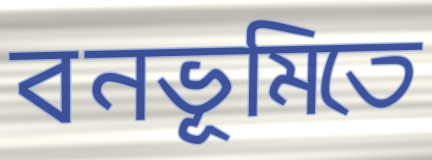
বনভূমিতে